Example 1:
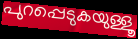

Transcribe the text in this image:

പുറപ്പെടുകയുള്ളൂ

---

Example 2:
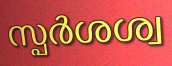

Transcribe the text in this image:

സ്പർശശ്വ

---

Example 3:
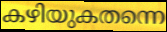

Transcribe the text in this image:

കഴിയുകതന്നെ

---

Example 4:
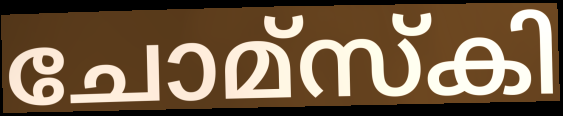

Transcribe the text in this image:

ചോമ്സ്കി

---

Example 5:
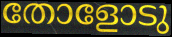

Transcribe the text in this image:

തോളോടു